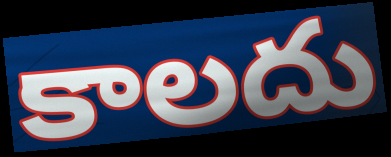
కాలదు